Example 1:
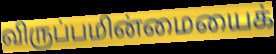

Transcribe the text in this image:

விருப்பமின்மையைக்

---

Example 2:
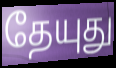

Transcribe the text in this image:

தேயுது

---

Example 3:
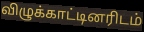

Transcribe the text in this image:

விழுக்காட்டினரிடம்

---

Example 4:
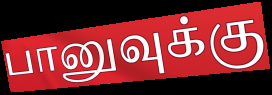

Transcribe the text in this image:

பானுவுக்கு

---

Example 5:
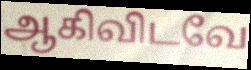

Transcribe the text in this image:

ஆகிவிடவே